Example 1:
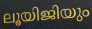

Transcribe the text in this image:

ലൂയിജിയും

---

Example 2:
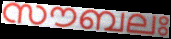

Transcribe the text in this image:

സൗബലഃ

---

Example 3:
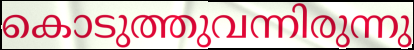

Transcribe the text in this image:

കൊടുത്തുവന്നിരുന്നു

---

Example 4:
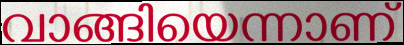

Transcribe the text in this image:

വാങ്ങിയെന്നാണ്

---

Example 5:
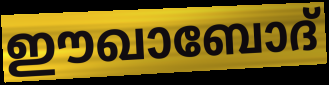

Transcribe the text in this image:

ഈഖാബോദ്